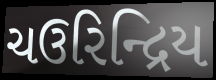
ચઉરિન્દ્રિય